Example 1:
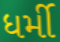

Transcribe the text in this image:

ધર્મી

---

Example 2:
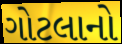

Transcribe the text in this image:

ગોટલાનો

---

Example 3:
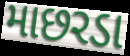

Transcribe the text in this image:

માછરડા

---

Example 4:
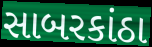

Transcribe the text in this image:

સાબરકાંઠા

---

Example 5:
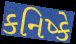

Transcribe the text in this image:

કનિષ્કે